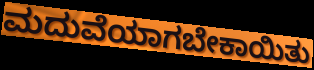
ಮದುವೆಯಾಗಬೇಕಾಯಿತು